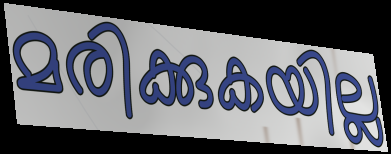
മരിക്കുകയില്ല